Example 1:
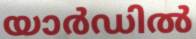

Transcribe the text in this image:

യാർഡിൽ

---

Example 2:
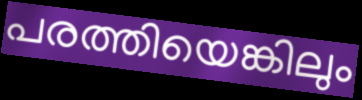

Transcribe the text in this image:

പരത്തിയെങ്കിലും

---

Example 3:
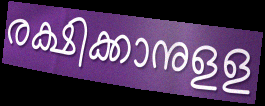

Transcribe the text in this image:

രക്ഷിക്കാനുളള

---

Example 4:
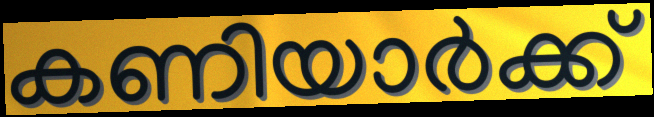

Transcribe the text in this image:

കണിയാർക്ക്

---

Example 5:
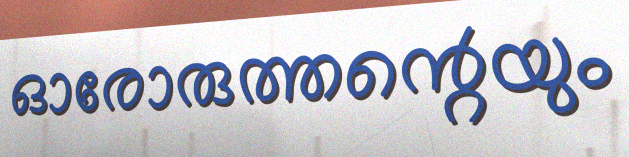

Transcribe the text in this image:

ഓരോരുത്തന്റെയും